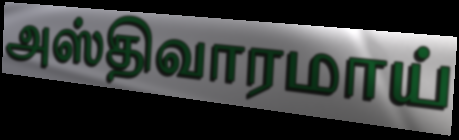
அஸ்திவாரமாய்